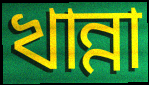
খান্না